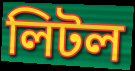
লিটল